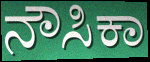
ನೌಸಿಕಾ